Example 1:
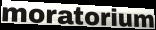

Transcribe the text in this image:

moratorium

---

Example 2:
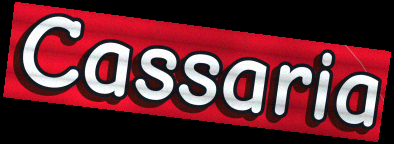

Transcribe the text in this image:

Cassaria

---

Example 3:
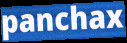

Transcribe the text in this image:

panchax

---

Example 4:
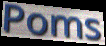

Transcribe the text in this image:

Poms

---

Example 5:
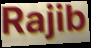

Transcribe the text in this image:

Rajib